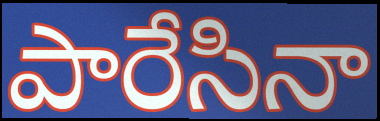
పారేసినా